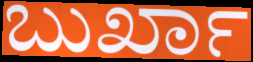
ಬುರ್ಖಾ